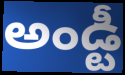
అండ్టీ